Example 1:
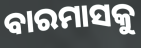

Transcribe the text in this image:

ବାରମାସକୁ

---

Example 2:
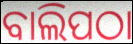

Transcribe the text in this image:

ବାଲିପଠା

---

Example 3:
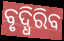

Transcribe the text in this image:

ବୃଦ୍ଧିରିବ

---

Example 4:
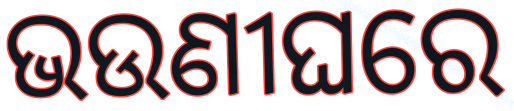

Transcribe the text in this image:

ଭଉଣୀଘରେ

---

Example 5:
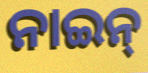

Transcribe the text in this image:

ନାଇନ୍